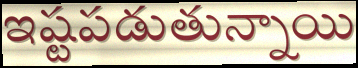
ఇష్టపడుతున్నాయి